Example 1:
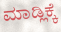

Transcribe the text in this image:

ಮಾಡ್ಲಿಕ್ಕೆ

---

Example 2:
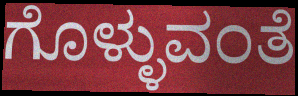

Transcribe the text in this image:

ಗೊಳ್ಳುವಂತೆ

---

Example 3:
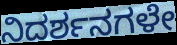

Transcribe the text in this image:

ನಿದರ್ಶನಗಳೇ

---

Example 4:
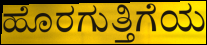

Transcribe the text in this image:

ಹೊರಗುತ್ತಿಗೆಯ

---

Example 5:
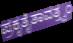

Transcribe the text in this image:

ಪ್ರಕೃತೈತಾವತ್ತ್ವಂ